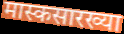
मास्कसारख्या